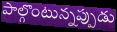
పాల్గొంటున్నప్పుడు